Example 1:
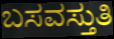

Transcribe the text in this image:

ಬಸವಸ್ತುತಿ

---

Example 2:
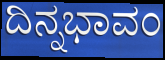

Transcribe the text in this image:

ದಿನ್ನಭಾವಂ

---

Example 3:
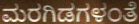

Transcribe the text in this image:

ಮರಗಿಡಗಳಂತೆ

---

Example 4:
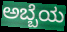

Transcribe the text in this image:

ಅಬ್ಬೆಯ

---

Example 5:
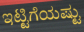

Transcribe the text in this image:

ಇಟ್ಟಿಗೆಯಷ್ಟು